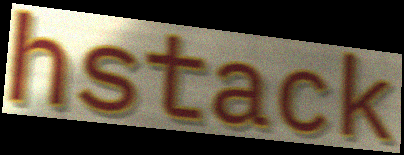
hstack